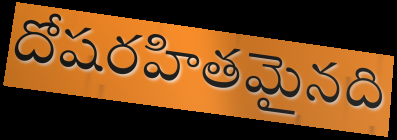
దోషరహితమైనది